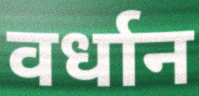
वर्धान